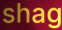
shag